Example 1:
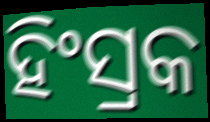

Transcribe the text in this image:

ହିଂସ୍ରକ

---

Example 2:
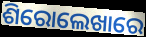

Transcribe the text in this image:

ଶିରୋଲେଖାରେ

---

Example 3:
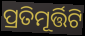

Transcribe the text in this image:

ପ୍ରତିମୂର୍ତ୍ତିଟି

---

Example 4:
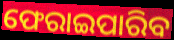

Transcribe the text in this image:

ଫେରାଇପାରିବ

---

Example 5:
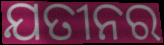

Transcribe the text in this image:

ଯତୀନର